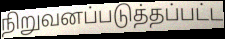
நிறுவனப்படுத்தப்பட்ட